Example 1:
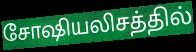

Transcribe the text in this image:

சோஷியலிசத்தில்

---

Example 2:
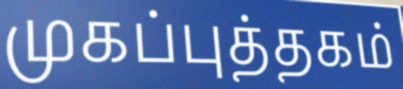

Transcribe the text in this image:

முகப்புத்தகம்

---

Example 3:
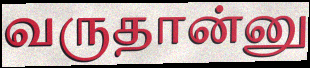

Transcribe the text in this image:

வருதான்னு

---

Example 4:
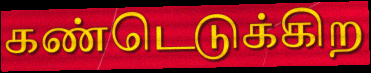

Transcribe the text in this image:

கண்டெடுக்கிற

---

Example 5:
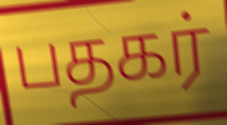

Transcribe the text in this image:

பதகர்